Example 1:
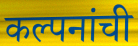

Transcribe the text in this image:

कल्पनांची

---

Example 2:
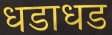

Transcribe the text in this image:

धडाधड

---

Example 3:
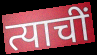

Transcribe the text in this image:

त्याचीं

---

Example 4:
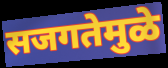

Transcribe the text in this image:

सजगतेमुळे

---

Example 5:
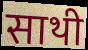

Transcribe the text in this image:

साथी